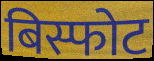
बिस्फोट